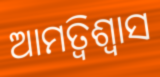
ଆମତ୍ବିଶ୍ୱାସ